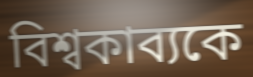
বিশ্বকাব্যকে